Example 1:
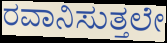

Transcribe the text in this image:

ರವಾನಿಸುತ್ತಲೇ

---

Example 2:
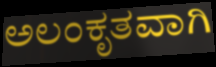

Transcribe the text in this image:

ಅಲಂಕೃತವಾಗಿ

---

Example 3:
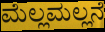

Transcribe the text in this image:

ಮೆಲ್ಲಮಲ್ಲನೆ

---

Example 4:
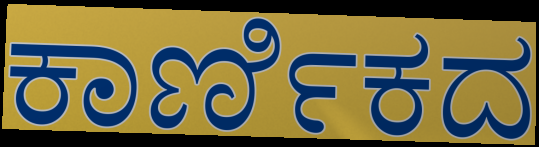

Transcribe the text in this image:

ಕಾರ್ಣಿಕದ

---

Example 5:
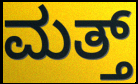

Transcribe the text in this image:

ಮತ್ತ್